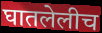
घातलेलीच